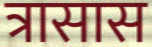
त्रासास